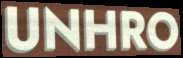
UNHRO